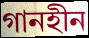
গানহীন